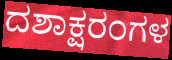
ದಶಾಕ್ಷರಂಗಳ